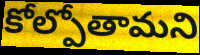
కోల్పోతామని